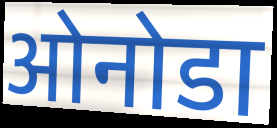
ओनोडा